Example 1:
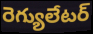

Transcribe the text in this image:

రెగ్యులేటర్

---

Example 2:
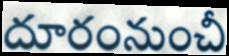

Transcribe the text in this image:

దూరంనుంచీ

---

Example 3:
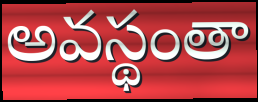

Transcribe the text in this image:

అవస్థంతా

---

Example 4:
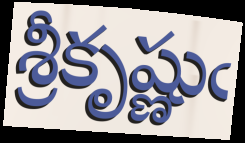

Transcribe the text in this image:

శ్రీకృష్ణుఁ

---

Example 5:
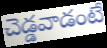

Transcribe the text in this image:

చెడ్డవాడంటే